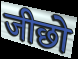
जीछो